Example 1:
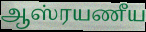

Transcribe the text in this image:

ஆஸ்ரயணீய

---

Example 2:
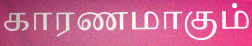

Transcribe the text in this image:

காரணமாகும்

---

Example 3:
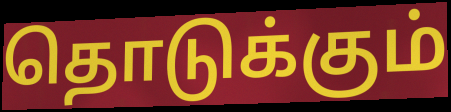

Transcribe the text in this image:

தொடுக்கும்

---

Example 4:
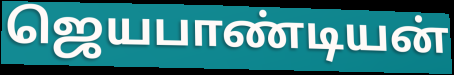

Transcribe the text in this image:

ஜெயபாண்டியன்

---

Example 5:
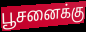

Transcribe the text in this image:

பூசனைக்கு